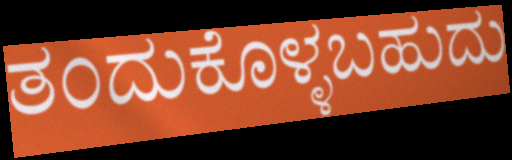
ತಂದುಕೊಳ್ಳಬಹುದು